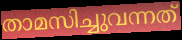
താമസിച്ചുവന്നത്